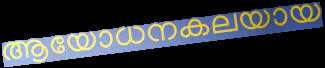
ആയോധനകലയായ